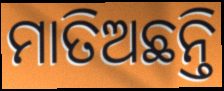
ମାତିଅଛନ୍ତି